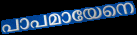
പാപമായേനെ